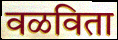
वळविता